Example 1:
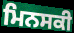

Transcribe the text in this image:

ਮਿਨਸਕੀ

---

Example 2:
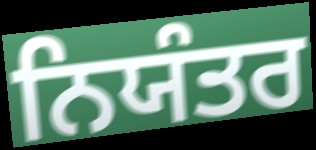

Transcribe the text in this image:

ਨਿਯੰਤਰ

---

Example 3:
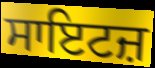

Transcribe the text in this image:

ਸਾਇਟਜ਼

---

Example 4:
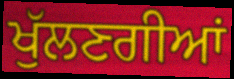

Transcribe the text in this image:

ਖੁੱਲਣਗੀਆਂ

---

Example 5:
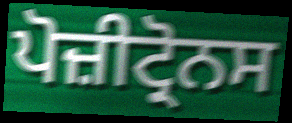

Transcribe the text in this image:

ਪੋਜ਼ੀਟ੍ਰੋਨਸ